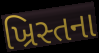
ખ્રિસ્તના